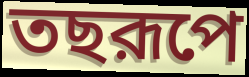
তছরূপে